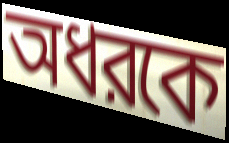
অধরকে